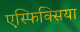
एस्फिक्सिया